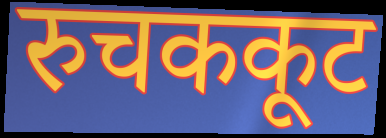
रुचककूट